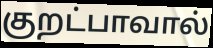
குறட்பாவால்